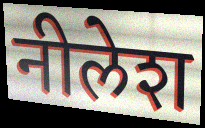
नीलेश